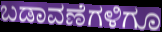
ಬಡಾವಣೆಗಳಿಗೂ